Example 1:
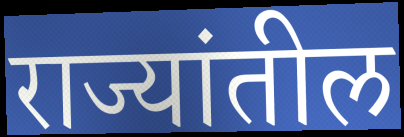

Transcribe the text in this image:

राज्यांतील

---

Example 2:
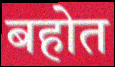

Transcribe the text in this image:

बहोत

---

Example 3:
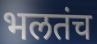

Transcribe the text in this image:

भलतंच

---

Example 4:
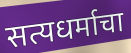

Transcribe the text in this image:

सत्यधर्माचा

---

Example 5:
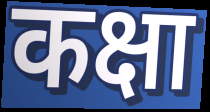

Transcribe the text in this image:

कक्षा